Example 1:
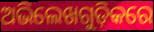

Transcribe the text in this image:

ଅଭିଲେଖଗୁଡ଼ିକରେ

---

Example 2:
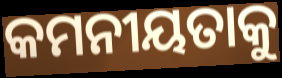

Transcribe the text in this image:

କମନୀୟତାକୁ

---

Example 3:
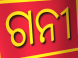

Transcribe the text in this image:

ଗନୀ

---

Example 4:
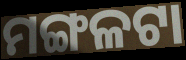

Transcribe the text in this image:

ମଙ୍ଗଳଟା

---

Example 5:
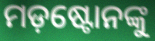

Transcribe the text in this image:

ମଡ଼ଷ୍ଟୋନଙ୍କୁ